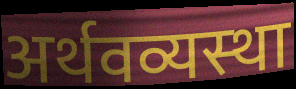
अर्थवव्यस्था